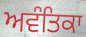
ਅਵੰਤਿਕਾ